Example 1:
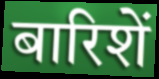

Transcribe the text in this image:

बारिशें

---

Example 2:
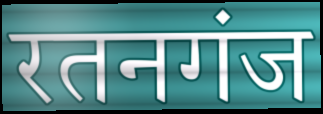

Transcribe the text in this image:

रतनगंज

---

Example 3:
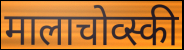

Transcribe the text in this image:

मालाचोव्स्की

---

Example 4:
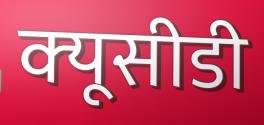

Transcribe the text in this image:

क्यूसीडी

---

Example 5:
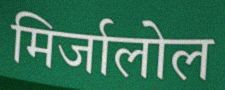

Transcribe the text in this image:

मिर्जालोल